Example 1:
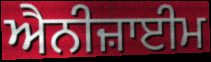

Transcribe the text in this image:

ਐਨੀਜ਼ਾਈਮ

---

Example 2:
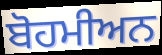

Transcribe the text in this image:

ਬੋਹਮੀਅਨ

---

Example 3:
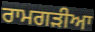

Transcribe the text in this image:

ਰਾਮਗੜੀਆ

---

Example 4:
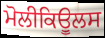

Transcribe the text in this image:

ਮੋਲੀਕਿਊਲਸ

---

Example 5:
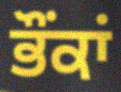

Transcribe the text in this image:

ਭੌਂਕਾਂ